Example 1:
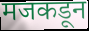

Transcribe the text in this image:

मजकडून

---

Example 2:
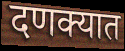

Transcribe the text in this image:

दणक्यात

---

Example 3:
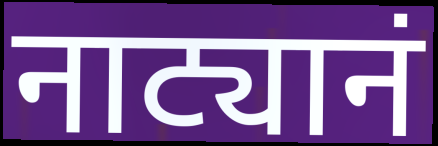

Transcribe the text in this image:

नाट्यानं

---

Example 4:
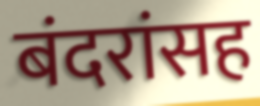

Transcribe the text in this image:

बंदरांसह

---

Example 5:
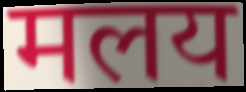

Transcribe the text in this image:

मलय